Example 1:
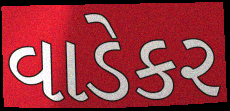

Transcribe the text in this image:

વાડેકર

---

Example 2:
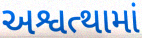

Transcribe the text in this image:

અશ્વત્થામાં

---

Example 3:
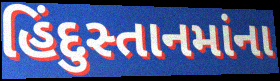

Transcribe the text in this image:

હિંદુસ્તાનમાંના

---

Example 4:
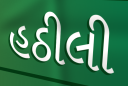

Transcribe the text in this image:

હઠીલી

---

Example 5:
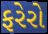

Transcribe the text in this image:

ફરેરો